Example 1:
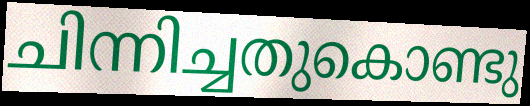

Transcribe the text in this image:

ചിന്നിച്ചതുകൊണ്ടു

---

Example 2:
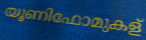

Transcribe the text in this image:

യൂണിഫോമുകള്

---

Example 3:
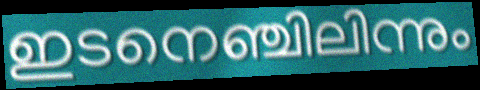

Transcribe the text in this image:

ഇടനെഞ്ചിലിന്നും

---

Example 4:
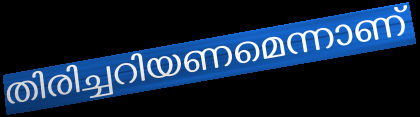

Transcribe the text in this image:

തിരിച്ചറിയണമെന്നാണ്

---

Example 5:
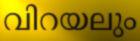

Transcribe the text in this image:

വിറയലും